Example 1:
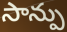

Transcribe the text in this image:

సాన్పు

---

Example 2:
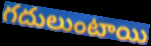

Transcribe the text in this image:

గదులుంటాయి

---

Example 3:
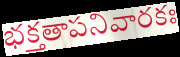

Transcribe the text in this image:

భక్తతాపనివారకః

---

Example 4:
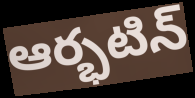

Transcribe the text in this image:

ఆర్భటిన్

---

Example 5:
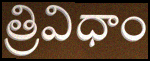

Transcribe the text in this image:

త్రివిధాం